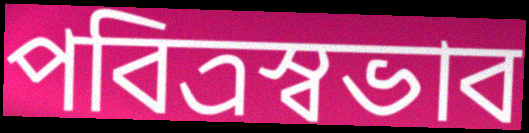
পবিত্রস্বভাব